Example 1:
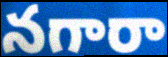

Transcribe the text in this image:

నగారా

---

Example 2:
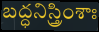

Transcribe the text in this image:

బద్ధనిస్త్రింశాః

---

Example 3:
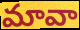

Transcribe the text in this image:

మావా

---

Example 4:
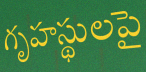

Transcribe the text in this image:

గృహస్థులపై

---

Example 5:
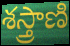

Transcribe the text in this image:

శస్త్రాణి